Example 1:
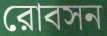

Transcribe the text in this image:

রোবসন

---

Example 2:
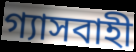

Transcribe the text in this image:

গ্যাসবাহী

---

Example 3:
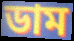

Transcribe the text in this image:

ডাম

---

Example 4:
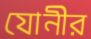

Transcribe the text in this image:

যোনীর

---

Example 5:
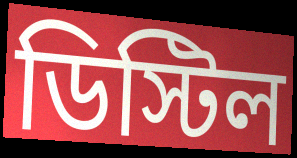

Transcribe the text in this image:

ডিস্টিল